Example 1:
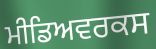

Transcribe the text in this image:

ਮੀਡਿਅਵਰਕਸ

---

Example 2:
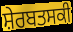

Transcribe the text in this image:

ਸ਼ੇਰਬਤਸਕੀ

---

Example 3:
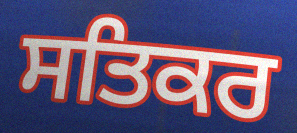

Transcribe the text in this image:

ਸਤਿਕਰ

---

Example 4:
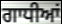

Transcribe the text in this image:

ਗਾਧੀਆਂ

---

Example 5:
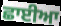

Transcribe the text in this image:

ਛਾਈਆ